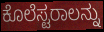
ಕೊಲೆಸ್ಟರಾಲನ್ನು